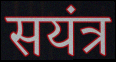
सयंत्र